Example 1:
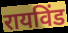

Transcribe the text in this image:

रायविंड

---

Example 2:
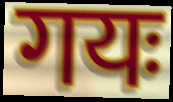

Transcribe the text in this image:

गयः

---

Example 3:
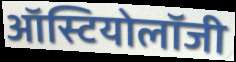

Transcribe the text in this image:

ऑस्टियोलॉजी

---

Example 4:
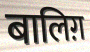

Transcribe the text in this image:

बालिग़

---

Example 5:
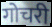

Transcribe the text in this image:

गोचरी